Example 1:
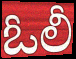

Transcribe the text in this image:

ఓలీ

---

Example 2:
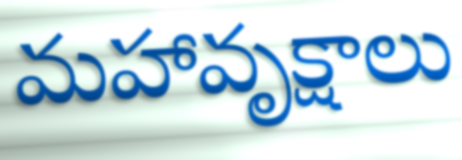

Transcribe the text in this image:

మహావృక్షాలు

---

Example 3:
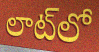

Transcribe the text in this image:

లాట్‌లో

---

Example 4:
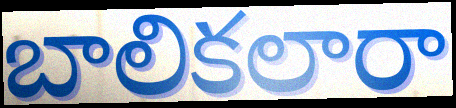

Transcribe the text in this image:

బాలికలారా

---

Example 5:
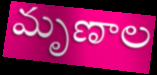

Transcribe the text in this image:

మృణాల